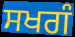
ਸਖਗੰ